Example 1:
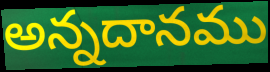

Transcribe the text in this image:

అన్నదానము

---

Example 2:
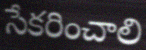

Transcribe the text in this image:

సేకరించాలి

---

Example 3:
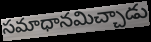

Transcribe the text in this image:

సమాధానమిచ్చాడు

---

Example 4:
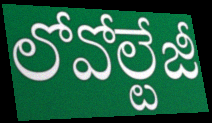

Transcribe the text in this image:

లోవోల్టేజీ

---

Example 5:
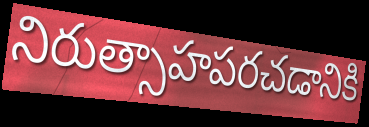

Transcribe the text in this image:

నిరుత్సాహపరచడానికి